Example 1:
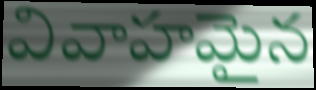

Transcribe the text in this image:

వివాహమైన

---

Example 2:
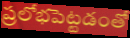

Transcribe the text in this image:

ప్రలోభపెట్టడంతో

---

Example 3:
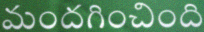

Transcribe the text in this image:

మందగించింది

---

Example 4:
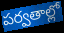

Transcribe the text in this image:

పర్వతాల్లో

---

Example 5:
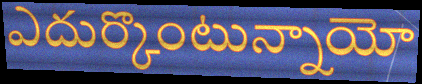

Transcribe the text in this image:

ఎదుర్కొంటున్నాయో